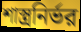
শাস্ত্রনির্ভর